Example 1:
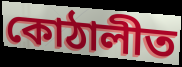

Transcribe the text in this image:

কোঠালীত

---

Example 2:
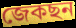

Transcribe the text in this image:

জেকছন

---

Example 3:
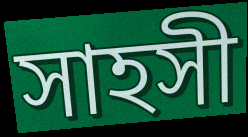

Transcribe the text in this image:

সাহসী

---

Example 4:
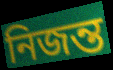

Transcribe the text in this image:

নিজন্ত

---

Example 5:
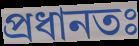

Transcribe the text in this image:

প্ৰধানতঃ